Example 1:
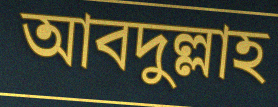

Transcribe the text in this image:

আবদুল্লাহ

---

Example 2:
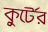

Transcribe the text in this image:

কুর্টের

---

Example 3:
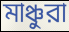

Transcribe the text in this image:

মাঞ্চুরা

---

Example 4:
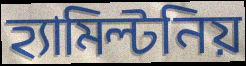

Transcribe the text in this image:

হ্যামিল্টনিয়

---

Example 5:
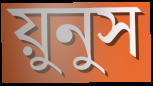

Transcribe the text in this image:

য়ুনুস